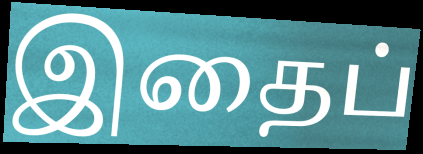
இதைப்